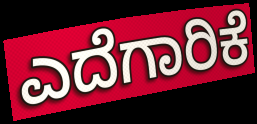
ಎದೆಗಾರಿಕೆ